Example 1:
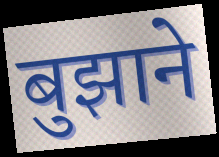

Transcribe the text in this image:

बुझाने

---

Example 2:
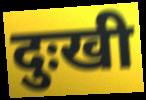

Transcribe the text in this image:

दुःखी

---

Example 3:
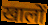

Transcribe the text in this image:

खालों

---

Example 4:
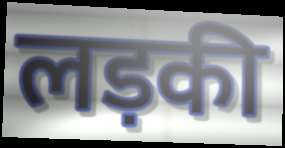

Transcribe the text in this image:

लड़की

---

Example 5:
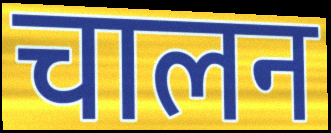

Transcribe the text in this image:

चालन